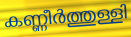
കണ്ണീർത്തുള്ളി